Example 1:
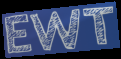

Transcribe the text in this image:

EWT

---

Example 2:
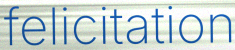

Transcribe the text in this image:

felicitation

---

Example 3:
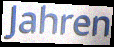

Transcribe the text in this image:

Jahren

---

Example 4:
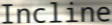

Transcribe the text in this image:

Incline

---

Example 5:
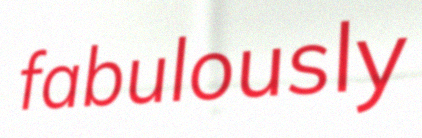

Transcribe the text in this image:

fabulously